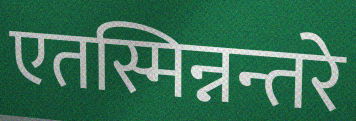
एतस्मिन्नन्तरे